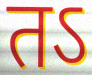
तऽ